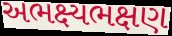
અભક્ષ્યભક્ષણ